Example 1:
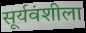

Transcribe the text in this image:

सूर्यवंशीला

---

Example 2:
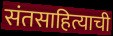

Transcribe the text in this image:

संतसाहित्याची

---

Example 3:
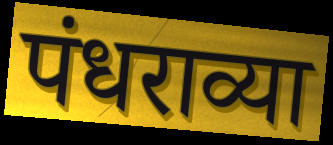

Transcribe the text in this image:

पंधराव्या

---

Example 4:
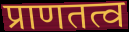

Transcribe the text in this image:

प्राणतत्व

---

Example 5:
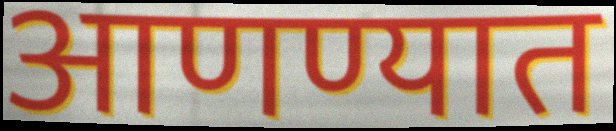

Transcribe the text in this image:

आणण्यात